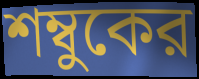
শম্বুকের